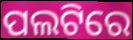
ପଲଟିରେ